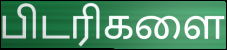
பிடரிகளை